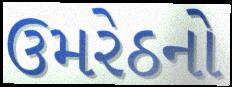
ઉમરેઠનો